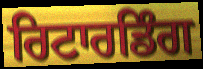
ਰਿਟਾਰਡਿੰਗ